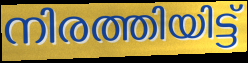
നിരത്തിയിട്ട്